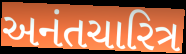
અનંતચારિત્ર